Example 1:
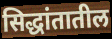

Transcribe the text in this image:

सिद्धांतातील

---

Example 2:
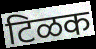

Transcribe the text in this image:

टिळक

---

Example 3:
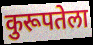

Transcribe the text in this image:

कुरूपतेला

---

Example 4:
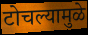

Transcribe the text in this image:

टोचल्यामुळे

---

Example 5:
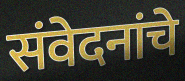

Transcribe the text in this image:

संवेदनांचे